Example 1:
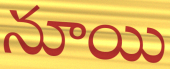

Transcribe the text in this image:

నూయి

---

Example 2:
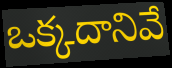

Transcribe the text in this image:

ఒక్కదానివే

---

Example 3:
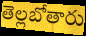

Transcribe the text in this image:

తెల్లబోతారు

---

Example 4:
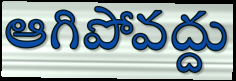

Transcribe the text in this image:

ఆగిపోవద్దు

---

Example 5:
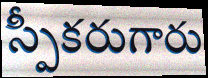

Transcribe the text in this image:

స్పీకరుగారు